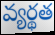
వ్యర్థత